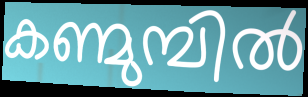
കണ്മുമ്പിൽ